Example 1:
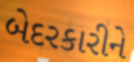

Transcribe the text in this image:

બેદરકારીને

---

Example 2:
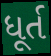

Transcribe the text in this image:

ધૂર્ત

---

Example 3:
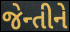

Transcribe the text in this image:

જેન્તીને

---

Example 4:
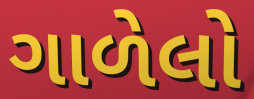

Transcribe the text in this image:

ગાળેલો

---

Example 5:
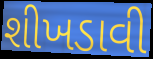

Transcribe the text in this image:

શીખડાવી